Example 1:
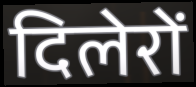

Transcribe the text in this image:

दिलेरों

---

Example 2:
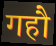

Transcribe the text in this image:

गहौ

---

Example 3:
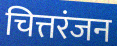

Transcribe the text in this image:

चित्तरंजन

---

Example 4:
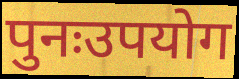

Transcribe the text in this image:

पुनःउपयोग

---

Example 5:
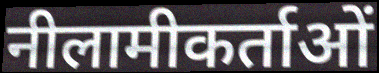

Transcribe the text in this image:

नीलामीकर्ताओं